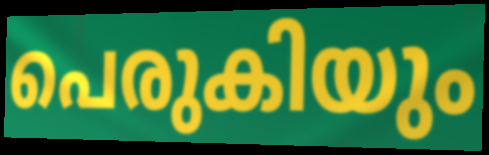
പെരുകിയും